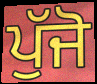
ਪੁੱਜੋ